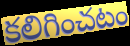
కలిగించటం